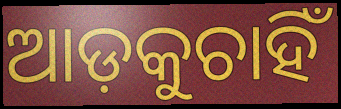
ଆଡ଼କୁଚାହିଁ